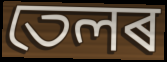
তেলৰ